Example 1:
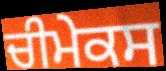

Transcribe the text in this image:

ਚੀਮੇਕਸ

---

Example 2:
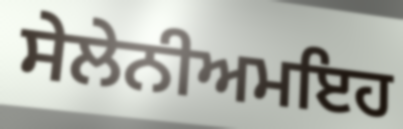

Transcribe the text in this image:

ਸੇਲੇਨੀਅਮਇਹ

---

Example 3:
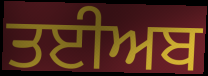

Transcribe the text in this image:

ਤਈਅਬ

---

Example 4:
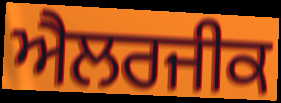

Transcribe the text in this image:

ਐਲਰਜੀਕ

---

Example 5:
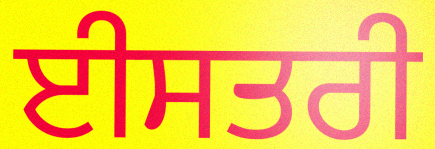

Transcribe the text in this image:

ਈਸਤਰੀ